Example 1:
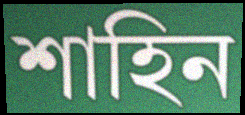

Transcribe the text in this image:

শাহিন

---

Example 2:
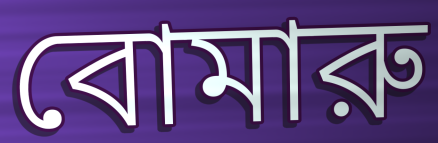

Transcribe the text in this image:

বোমারু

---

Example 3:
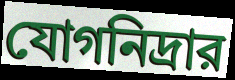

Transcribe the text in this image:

যোগনিদ্রার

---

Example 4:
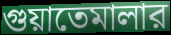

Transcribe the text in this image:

গুয়াতেমালার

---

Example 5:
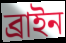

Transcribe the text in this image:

ব্রাইন